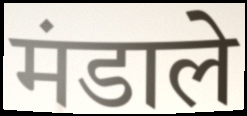
मंडाले